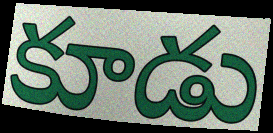
కూడు